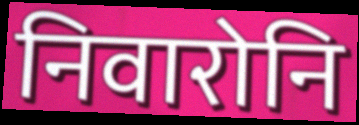
निवारोनि